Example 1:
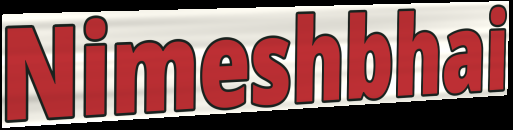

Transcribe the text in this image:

Nimeshbhai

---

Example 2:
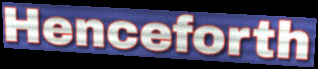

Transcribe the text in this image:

Henceforth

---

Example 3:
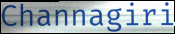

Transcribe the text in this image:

Channagiri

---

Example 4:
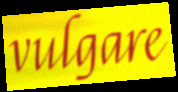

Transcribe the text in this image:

vulgare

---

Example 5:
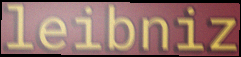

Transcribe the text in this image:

leibniz